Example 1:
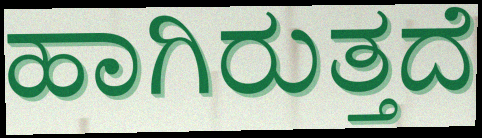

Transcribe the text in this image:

ಹಾಗಿರುತ್ತದೆ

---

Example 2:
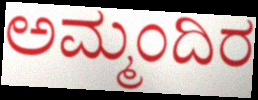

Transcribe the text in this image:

ಅಮ್ಮಂದಿರ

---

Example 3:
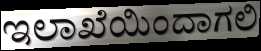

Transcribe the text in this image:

ಇಲಾಖೆಯಿಂದಾಗಲಿ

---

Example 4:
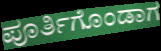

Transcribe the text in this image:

ಪೂರ್ತಿಗೊಂಡಾಗ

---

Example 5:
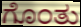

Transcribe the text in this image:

ಗೊಂತು